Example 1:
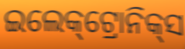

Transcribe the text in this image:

ଇଲେକ୍‌ଟ୍ରୋନିକ୍‌ସ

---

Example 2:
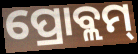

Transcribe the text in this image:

ପ୍ରୋବ୍ଲମ୍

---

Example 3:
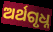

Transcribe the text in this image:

ଅର୍ଥଗୃଧ୍ନ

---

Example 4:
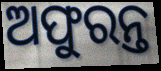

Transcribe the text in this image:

ଅଫୁରନ୍ତ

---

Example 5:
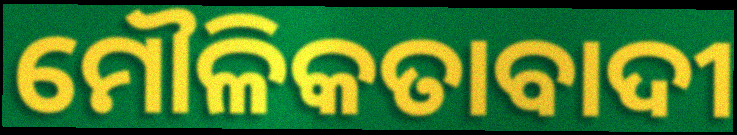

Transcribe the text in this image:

ମୌଳିକତାବାଦୀ